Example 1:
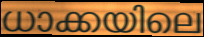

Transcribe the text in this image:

ധാക്കയിലെ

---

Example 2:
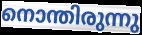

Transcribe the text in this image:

നൊന്തിരുന്നു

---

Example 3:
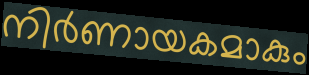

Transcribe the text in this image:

നിർണായകമാകും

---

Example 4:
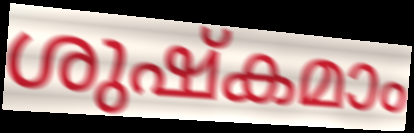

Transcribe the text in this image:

ശുഷ്കമാം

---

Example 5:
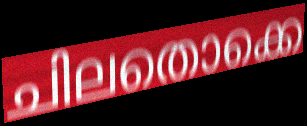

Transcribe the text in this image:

ചിലതൊക്കെ